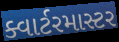
ક્વાર્ટરમાસ્ટર